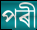
পৰী